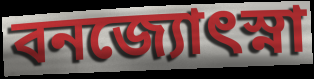
বনজ্যোৎস্না